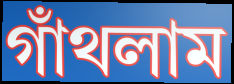
গাঁথলাম